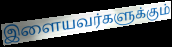
இளையவர்களுக்கும்